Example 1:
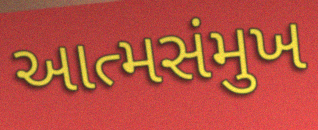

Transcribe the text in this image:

આત્મસંમુખ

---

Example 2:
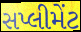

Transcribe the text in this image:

સપ્લીમેંટ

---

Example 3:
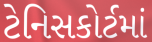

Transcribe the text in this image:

ટેનિસકોર્ટમાં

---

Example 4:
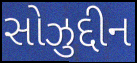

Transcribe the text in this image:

સોઝુદ્દીન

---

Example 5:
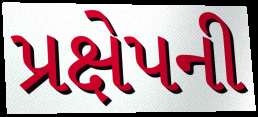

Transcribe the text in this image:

પ્રક્ષેપની